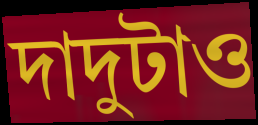
দাদুটাও